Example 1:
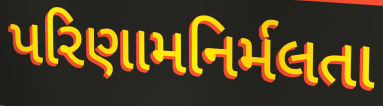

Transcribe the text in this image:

પરિણામનિર્મલતા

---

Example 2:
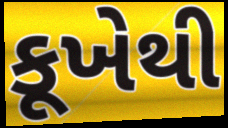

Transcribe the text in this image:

કૂખેથી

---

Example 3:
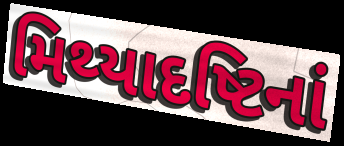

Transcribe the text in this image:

મિથ્યાદષ્ટિનાં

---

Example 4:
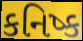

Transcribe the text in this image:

કનિષ્ક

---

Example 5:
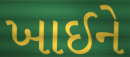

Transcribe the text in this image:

ખાઈને